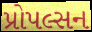
પ્રોપલ્સન